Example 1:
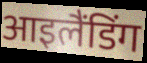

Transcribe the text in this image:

आइलैंडिंग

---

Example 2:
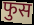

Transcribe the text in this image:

फुस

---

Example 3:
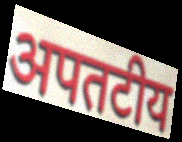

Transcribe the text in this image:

अपतटीय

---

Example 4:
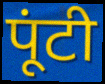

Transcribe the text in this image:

पूंटी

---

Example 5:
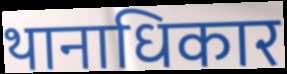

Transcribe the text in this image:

थानाधिकार